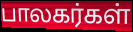
பாலகர்கள்